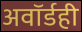
अवॉर्डही